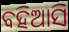
ବହିଆସି